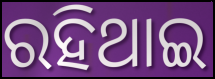
ରହିଥାଇ